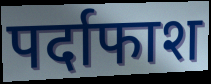
पर्दाफाश